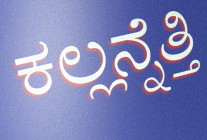
ಕಲ್ಲನ್ನೆತ್ತಿ